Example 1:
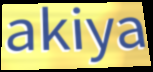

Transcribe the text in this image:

akiya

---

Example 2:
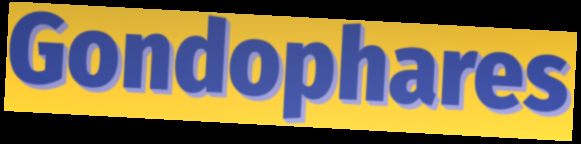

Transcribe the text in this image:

Gondophares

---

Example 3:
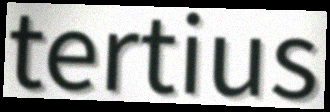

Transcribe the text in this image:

tertius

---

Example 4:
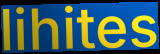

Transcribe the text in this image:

lihites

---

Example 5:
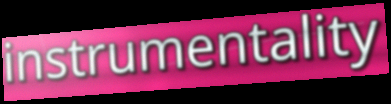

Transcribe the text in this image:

instrumentality